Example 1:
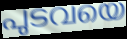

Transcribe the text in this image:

പുടവയെ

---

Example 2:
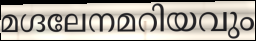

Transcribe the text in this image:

മഗ്ദലേനമറിയവും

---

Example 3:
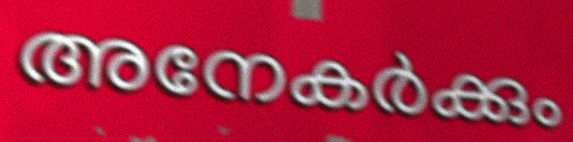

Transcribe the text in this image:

അനേകർക്കും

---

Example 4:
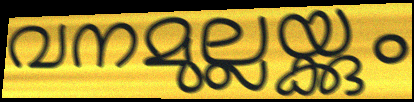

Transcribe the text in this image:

വനമുല്ലയ്ക്കും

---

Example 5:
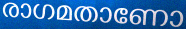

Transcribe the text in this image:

രാഗമതാണോ